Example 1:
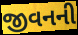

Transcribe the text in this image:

જીવનની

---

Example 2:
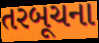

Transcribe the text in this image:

તરબૂચના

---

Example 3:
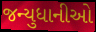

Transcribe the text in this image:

જન્યુધાનીઓ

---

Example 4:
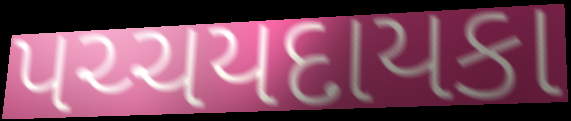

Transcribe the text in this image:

પચ્ચયદાયકા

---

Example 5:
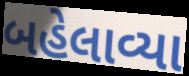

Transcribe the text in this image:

બહેલાવ્યા